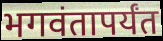
भगवंतापर्यंत